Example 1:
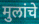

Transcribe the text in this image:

मुलांचे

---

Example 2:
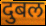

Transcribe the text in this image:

दुबल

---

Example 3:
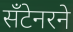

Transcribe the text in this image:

सँटेनरने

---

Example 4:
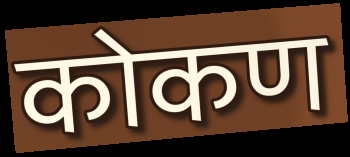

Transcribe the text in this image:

कोकण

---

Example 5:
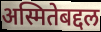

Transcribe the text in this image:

अस्मितेबद्दल